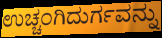
ಉಚ್ಚಂಗಿದುರ್ಗವನ್ನು